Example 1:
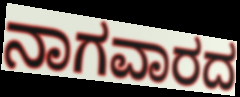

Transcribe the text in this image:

ನಾಗವಾರದ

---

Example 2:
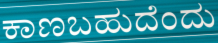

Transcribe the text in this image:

ಕಾಣಬಹುದೆಂದು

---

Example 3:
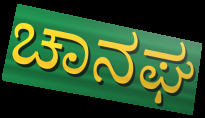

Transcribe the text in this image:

ಚಾನಘ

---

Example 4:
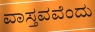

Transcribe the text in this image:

ವಾಸ್ತವವೆಂದು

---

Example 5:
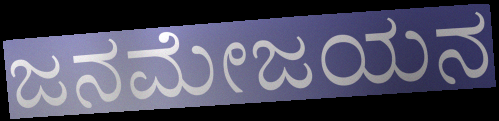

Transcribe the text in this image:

ಜನಮೇಜಯನ